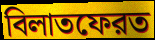
বিলাতফেরত